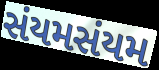
સંયમસંયમ